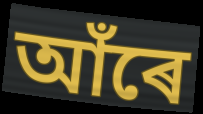
আঁৰে